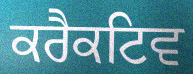
ਕਰੈਕਟਿਵ